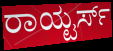
ರಾಯ್ಟರ್ಸ್